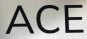
ACE